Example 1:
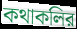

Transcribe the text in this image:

কথাকলির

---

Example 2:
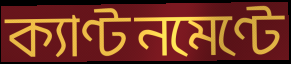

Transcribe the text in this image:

ক্যাণ্টনমেণ্টে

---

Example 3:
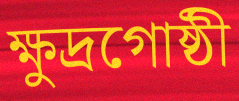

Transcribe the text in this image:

ক্ষুদ্রগোষ্ঠী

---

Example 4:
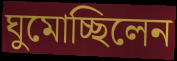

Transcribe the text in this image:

ঘুমোচ্ছিলেন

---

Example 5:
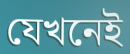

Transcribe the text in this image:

যেখনেই